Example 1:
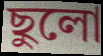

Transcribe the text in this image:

ছুলো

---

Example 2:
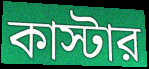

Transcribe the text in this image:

কাস্টার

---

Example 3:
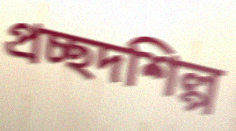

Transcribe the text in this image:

প্রচ্ছদশিল্প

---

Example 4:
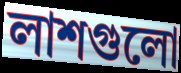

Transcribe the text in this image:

লাশগুলো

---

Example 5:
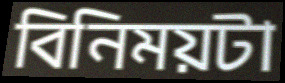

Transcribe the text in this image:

বিনিময়টা